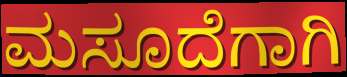
ಮಸೂದೆಗಾಗಿ